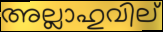
അല്ലാഹുവില്